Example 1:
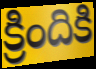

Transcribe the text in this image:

క్రిందికి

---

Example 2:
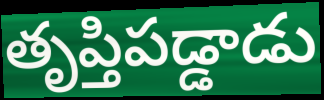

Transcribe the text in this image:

తృప్తిపడ్డాడు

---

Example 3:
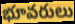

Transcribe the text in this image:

భూవరులు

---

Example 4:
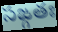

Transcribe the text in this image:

సఙ్గతః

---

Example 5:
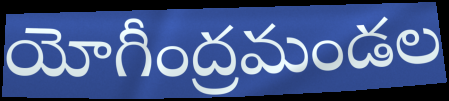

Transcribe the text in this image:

యోగీంద్రమండల